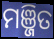
ମଞ୍ଜିତ